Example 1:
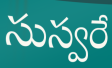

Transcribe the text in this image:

సుస్వరే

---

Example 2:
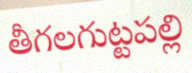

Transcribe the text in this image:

తీగలగుట్టపల్లి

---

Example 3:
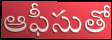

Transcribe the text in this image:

ఆఫీసుతో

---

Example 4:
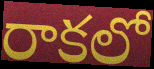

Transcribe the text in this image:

రాకలో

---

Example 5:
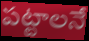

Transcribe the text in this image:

పట్టాలనే